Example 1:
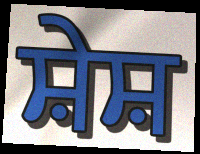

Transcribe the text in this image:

ਸ਼ੇਸ਼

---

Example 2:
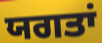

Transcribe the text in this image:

ਯਗਤਾਂ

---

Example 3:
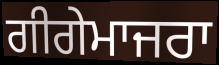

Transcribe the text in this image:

ਗੀਗੇਮਾਜਰਾ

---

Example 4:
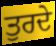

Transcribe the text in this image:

ਤੁਰਦੇ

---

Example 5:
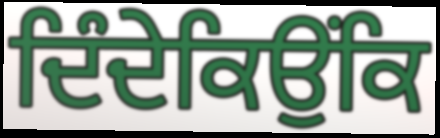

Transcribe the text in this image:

ਦਿੰਦੇਕਿਉਂਕਿ